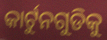
କାର୍ଟୁନଗୁଡିକୁ